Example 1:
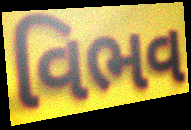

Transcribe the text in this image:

વિભવ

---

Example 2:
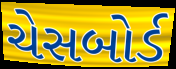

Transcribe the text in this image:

ચેસબોર્ડ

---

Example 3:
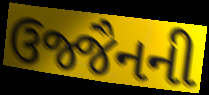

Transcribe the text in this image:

ઉજ્જૈનની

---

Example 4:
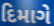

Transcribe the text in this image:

દિમાગે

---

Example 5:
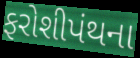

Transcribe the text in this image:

ફરોશીપંથના